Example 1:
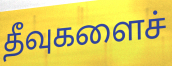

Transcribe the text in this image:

தீவுகளைச்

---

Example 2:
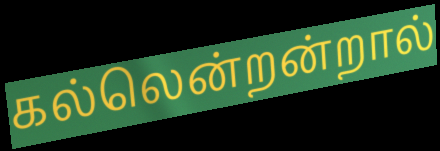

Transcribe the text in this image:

கல்லென்றன்றால்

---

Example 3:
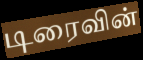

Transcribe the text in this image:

டிரைவின்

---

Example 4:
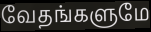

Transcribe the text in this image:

வேதங்களுமே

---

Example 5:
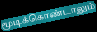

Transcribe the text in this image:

மூடிக்கொண்டாலும்